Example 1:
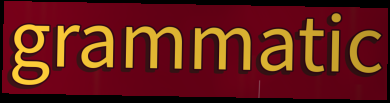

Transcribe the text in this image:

grammatic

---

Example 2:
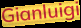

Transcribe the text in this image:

Gianluigi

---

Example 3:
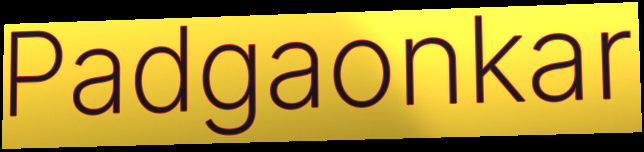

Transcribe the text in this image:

Padgaonkar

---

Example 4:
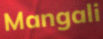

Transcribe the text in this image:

Mangali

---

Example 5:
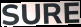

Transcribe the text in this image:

SURE